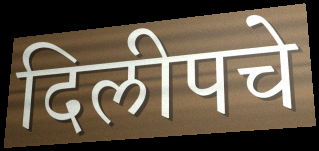
दिलीपचे